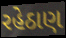
રહેઠાણ